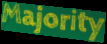
Majority